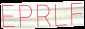
EPRLF